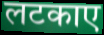
लटकाए